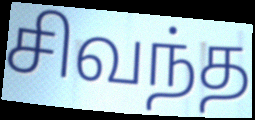
சிவந்த